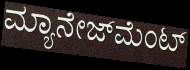
ಮ್ಯಾನೇಜ್‍ಮೆಂಟ್